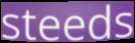
steeds